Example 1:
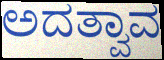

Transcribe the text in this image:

ಅದತ್ವಾವ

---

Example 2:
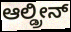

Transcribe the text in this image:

ಆಲ್ಡ್ರೀನ್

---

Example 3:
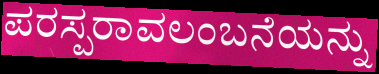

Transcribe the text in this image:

ಪರಸ್ಪರಾವಲಂಬನೆಯನ್ನು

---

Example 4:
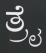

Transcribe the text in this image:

ತ್ರೈ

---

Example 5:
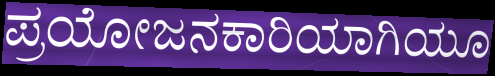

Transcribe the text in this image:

ಪ್ರಯೋಜನಕಾರಿಯಾಗಿಯೂ